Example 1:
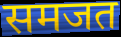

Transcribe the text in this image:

समजत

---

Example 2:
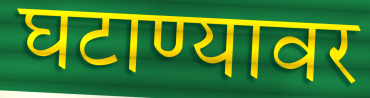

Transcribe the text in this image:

घटाण्यावर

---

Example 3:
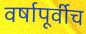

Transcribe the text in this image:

वर्षापूर्वीच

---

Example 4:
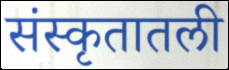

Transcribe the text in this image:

संस्कृतातली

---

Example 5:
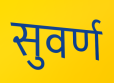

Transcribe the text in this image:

सुवर्ण